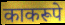
काकरूपे